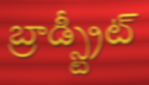
బ్రాడ్స్ట్రీట్